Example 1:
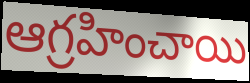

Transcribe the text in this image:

ఆగ్రహించాయి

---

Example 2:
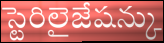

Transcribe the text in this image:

స్టెరిలైజేషన్కు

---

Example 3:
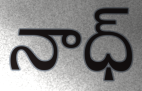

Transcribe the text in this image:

నాధ్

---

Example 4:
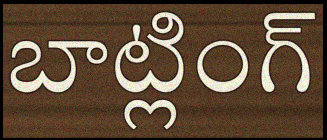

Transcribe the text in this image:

బాట్లింగ్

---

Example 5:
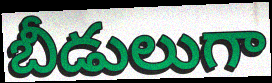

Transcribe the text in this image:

బీడులుగా